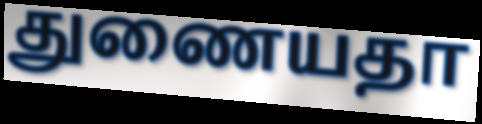
துணையதா